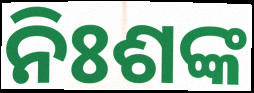
ନିଃଶଙ୍କ